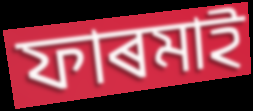
ফাৰমাই